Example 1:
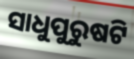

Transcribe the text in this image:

ସାଧୁପୁରୁଷଟି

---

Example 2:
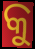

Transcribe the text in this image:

କୁ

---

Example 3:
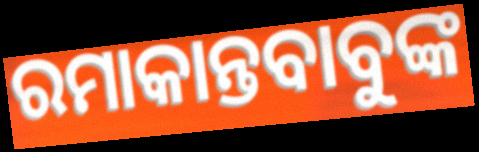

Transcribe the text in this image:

ରମାକାନ୍ତବାବୁଙ୍କ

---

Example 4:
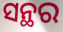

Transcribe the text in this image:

ସନ୍ଥର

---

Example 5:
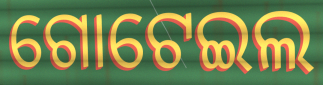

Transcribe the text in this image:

ଗୋଟେଇଲ